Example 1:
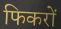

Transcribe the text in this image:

फिकरों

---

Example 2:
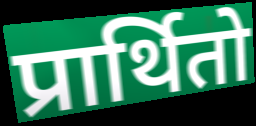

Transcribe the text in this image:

प्रार्थितो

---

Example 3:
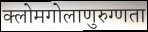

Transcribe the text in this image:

क्लोमगोलाणुरुग्णता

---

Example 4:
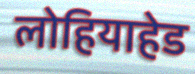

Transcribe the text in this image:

लोहियाहेड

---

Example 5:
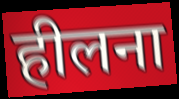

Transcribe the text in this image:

हीलना